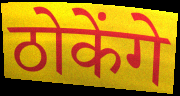
ठोकेंगे